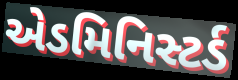
એડમિનિસ્ટર્ડ